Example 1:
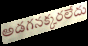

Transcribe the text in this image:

అడగనక్కరలేదు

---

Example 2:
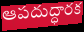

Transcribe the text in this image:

ఆపదుద్ధారక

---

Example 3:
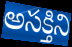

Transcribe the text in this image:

అసక్తిని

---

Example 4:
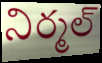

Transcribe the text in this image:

నిర్మల్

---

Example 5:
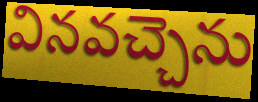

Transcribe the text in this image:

వినవచ్చెను